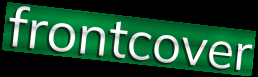
frontcover